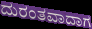
ದುರಂತವಾದಾಗ